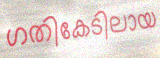
ഗതികേടിലായ